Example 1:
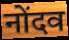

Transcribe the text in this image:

नोंदव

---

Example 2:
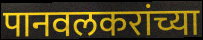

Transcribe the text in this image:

पानवलकरांच्या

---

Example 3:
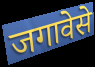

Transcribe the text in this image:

जगावेसे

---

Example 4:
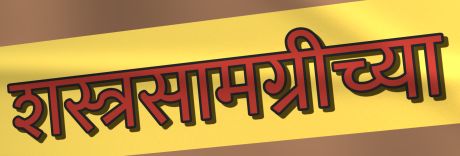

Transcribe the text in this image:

शस्त्रसामग्रीच्या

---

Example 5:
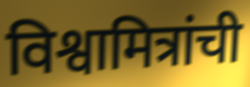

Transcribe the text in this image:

विश्वामित्रांची